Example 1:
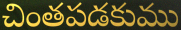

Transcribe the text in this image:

చింతపడకుము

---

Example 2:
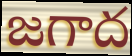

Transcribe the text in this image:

జగాద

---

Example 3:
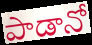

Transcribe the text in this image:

పాడానో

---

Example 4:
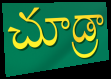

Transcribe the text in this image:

చూడ్రా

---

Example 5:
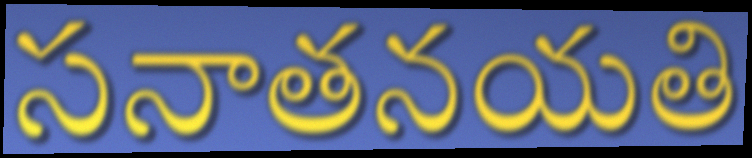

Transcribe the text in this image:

సనాతనయతి